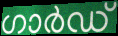
ഗാർഡ്